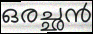
ഒരച്ഛൻ